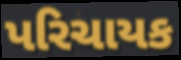
પરિચાયક